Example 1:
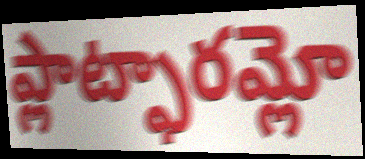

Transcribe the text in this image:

ప్లాట్ఫారమ్లో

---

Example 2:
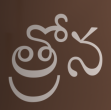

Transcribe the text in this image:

త్రోన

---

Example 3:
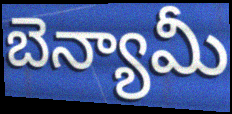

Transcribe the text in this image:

బెన్యామీ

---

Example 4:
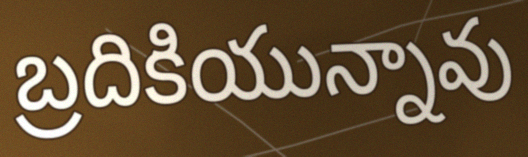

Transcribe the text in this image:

బ్రదికియున్నావు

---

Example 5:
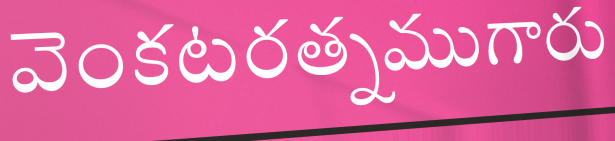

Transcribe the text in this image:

వెంకటరత్నముగారు